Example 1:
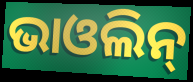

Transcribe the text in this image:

ଭାଓଲିନ୍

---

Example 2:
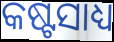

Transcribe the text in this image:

କଷ୍ଟସାଧ୍ଯ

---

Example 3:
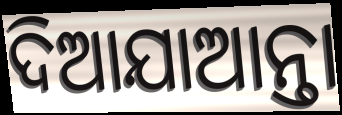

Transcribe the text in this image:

ଦିଆଯାଆନ୍ତା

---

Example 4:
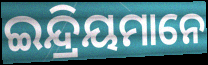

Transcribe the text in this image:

ଇନ୍ଦ୍ରିୟମାନେ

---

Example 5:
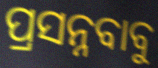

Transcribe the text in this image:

ପ୍ରସନ୍ନବାବୁ